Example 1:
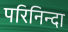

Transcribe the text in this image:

परिनिन्दा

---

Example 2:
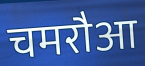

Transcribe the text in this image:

चमरौआ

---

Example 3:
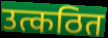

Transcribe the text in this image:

उत्कठित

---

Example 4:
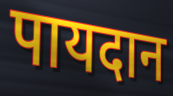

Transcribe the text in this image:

पायदान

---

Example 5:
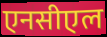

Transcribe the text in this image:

एनसीएल